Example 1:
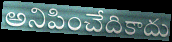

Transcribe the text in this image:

అనిపించేదికాదు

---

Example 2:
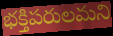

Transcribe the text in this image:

భక్తిపరులమని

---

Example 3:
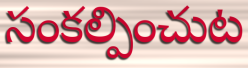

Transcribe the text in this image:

సంకల్పించుట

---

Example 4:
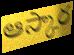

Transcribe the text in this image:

ఆస్కార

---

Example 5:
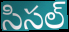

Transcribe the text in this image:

సిసల్